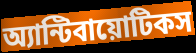
অ্যান্টিবায়োটিকস